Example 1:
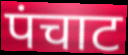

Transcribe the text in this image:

पंचाट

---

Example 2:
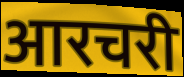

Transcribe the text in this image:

आरचरी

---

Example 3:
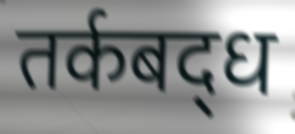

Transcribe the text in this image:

तर्कबद्ध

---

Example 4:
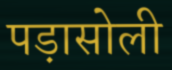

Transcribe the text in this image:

पड़ासोली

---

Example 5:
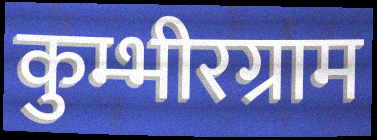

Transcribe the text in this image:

कुम्भीरग्राम